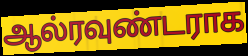
ஆல்ரவுண்டராக